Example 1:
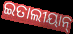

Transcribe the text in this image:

ଇତାଲୀୟାନ୍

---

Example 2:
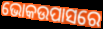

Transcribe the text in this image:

ଭୋକଉପାସରେ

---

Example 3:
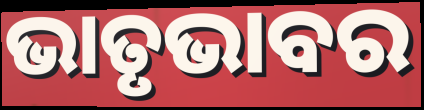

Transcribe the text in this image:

ଭାତୃଭାବର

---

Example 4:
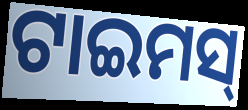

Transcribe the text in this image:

ଟାଇମସ୍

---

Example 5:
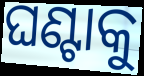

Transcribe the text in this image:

ଘଣ୍ଟାକୁ